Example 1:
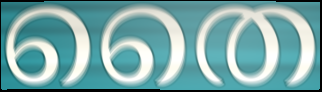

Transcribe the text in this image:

തൈ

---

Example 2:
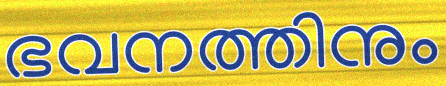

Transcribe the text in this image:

ഭവനത്തിനും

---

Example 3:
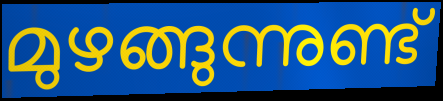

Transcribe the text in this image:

മുഴങ്ങുന്നുണ്ട്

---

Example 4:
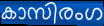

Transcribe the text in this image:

കാസിരംഗ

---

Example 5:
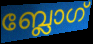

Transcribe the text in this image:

ബ്ലോഗ്